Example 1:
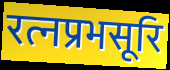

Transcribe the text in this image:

रत्नप्रभसूरि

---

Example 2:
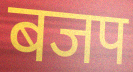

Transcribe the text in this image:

बजप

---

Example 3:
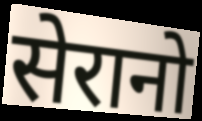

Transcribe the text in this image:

सेरानो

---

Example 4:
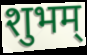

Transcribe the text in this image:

शुभम्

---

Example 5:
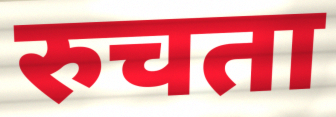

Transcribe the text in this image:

रुचता